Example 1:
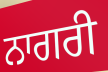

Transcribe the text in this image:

ਨਾਗਰੀ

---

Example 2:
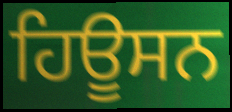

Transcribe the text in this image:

ਹਿਊਸਨ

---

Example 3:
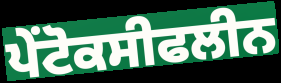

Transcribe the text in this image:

ਪੇਂਟੋਕਸੀਫਲੀਨ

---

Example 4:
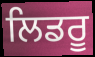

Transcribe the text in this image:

ਲਿਡਰੂ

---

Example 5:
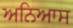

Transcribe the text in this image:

ਅਨਿਆਸ